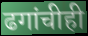
ढगांचीही